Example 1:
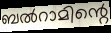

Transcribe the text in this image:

ബൽറാമിന്റെ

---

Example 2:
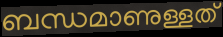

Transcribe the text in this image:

ബന്ധമാണുള്ളത്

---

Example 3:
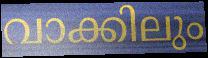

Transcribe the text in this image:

വാക്കിലും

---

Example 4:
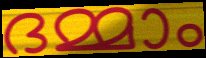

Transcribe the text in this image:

ദമ്മാം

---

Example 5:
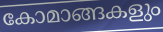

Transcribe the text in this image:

കോമാങ്ങകളും